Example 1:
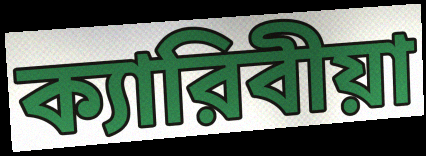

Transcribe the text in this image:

ক্যারিবীয়া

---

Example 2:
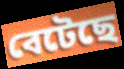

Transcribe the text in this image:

বেটেছে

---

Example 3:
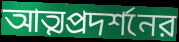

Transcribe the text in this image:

আত্মপ্রদর্শনের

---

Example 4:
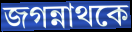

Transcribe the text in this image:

জগন্নাথকে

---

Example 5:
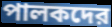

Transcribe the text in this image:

পালকদের